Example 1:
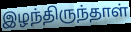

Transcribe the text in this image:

இழந்திருந்தாள்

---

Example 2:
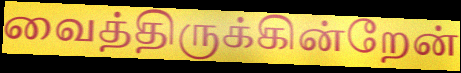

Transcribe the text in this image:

வைத்திருக்கின்றேன்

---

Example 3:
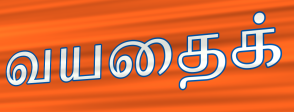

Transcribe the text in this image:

வயதைக்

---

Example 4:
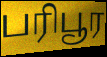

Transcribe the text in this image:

பரிபூர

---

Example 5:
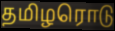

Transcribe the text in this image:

தமிழரொடு